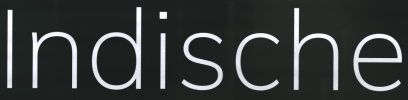
Indische